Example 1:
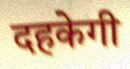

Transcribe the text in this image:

दहकेगी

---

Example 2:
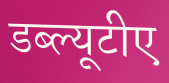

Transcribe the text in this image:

डब्ल्यूटीए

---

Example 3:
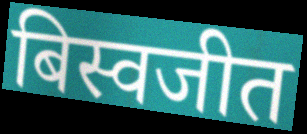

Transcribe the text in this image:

बिस्वजीत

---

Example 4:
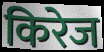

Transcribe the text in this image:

किरेज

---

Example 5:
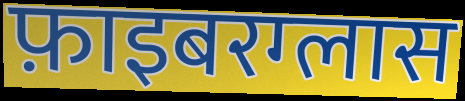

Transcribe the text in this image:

फ़ाइबरग्लास